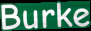
Burke